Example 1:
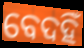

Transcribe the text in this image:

ବେଦହିଁ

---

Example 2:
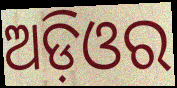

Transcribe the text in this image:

ଅଡ଼ିଓର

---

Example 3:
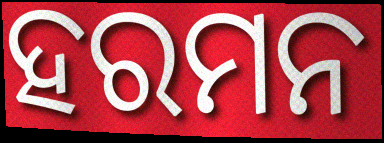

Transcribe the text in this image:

ହରମନ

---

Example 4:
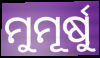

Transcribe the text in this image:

ମୁମୂର୍ଷୁ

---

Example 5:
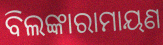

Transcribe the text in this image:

ବିଲଙ୍କାରାମାୟଣ